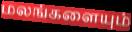
மலங்களையும்